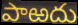
పాఱదు